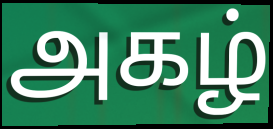
அகழ்